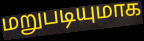
மறுபடியுமாக